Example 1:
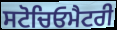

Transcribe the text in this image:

ਸਟੋਚਿਓਮੈਟਰੀ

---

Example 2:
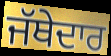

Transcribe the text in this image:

ਜੱਥੇਦਾਰ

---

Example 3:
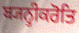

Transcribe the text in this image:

ਬ੍ਯਨ੍ਤੀਕਰੋਤਿ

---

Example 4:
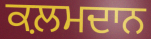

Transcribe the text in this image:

ਕ਼ਲਮਦਾਨ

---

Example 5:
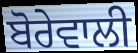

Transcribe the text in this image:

ਬੋਰੇਵਾਲੀ